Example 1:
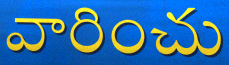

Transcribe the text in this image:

వారించు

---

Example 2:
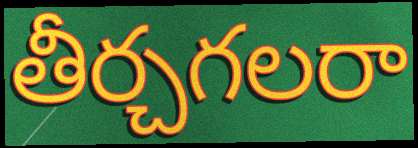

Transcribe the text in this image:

తీర్చగలరా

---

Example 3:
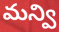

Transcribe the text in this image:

మన్వి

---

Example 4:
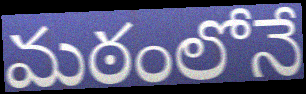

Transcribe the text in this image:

మఠంలోనే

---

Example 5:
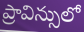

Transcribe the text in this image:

ప్రావిన్సులో